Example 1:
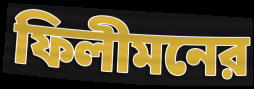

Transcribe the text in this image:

ফিলীমনের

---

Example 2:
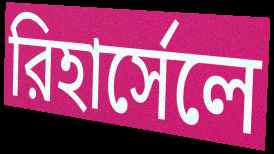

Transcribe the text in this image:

রিহার্সেলে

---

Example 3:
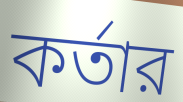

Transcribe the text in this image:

কর্তার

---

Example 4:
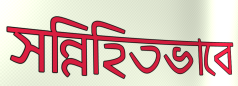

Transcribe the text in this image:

সন্নিহিতভাবে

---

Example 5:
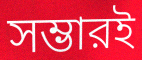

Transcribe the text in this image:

সম্ভারই